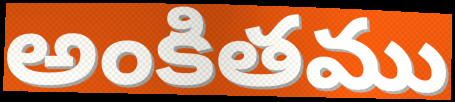
అంకితము